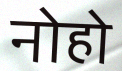
नोहो